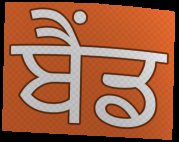
ਬੈਂਡ